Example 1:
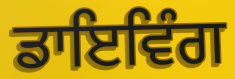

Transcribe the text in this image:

ਡਾਇਵਿੰਗ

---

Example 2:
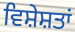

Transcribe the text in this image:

ਵਿਸ਼ੇਸ਼ਤਾਂ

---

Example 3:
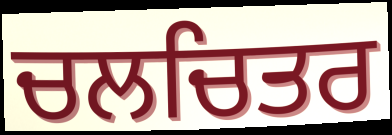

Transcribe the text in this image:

ਚਲਚਿਤਰ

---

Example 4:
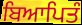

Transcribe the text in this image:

ਬਿਆਪਿਤੰ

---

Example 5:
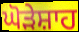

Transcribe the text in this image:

ਘੋੜੇਸ਼ਾਹ